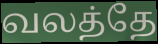
வலத்தே